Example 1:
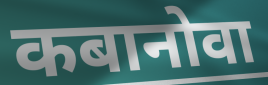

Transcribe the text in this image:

कबानोवा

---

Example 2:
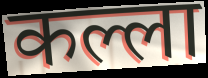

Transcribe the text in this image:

कल्ला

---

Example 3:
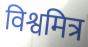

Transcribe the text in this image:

विश्वमित्र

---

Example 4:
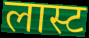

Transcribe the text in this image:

लास्ट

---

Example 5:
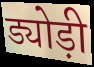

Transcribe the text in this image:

ड्योड़ी